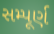
સમ્પૂર્ણ